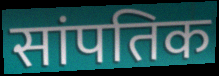
सांपतिक